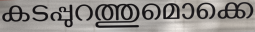
കടപ്പുറത്തുമൊക്കെ